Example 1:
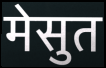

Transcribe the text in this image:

मेसुत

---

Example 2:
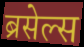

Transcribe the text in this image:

ब्रसेल्स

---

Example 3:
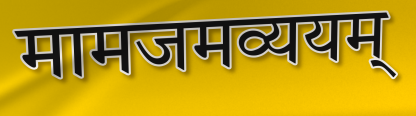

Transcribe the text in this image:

मामजमव्ययम्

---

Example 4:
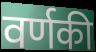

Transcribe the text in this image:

वर्णकी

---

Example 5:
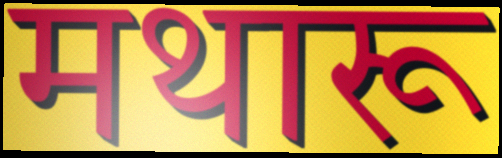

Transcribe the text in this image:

मथारू